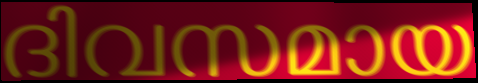
ദിവസമായ